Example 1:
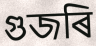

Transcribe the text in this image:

গুজৰি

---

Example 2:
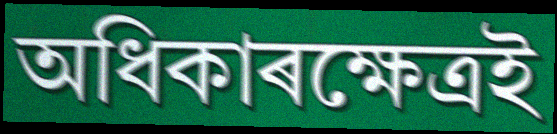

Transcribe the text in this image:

অধিকাৰক্ষেত্ৰই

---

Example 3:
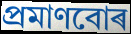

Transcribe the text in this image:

প্ৰমাণবোৰ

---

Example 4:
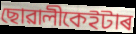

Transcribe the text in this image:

ছোৱালীকেইটাৰ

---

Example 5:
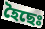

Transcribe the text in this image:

হৈছেঃ